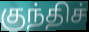
குந்திச்